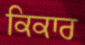
ਕਿਕਾਰ